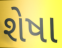
શેષા